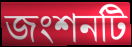
জংশনটি